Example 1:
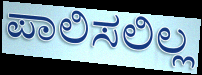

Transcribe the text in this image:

ಪಾಲಿಸಲಿಲ್ಲ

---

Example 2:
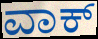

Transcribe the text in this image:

ವಾಕ್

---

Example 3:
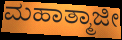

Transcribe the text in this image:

ಮಹಾತ್ಮಾಜೀ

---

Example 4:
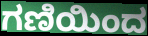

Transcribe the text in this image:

ಗಣಿಯಿಂದ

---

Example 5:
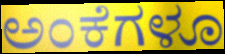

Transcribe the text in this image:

ಅಂಕೆಗಳೂ